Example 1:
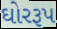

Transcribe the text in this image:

ઘોરરૂપ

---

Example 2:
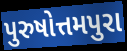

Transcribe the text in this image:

પુરુષોત્તમપુરા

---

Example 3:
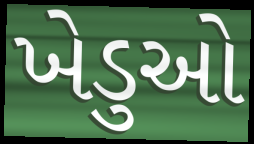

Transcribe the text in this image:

ખેડુઓ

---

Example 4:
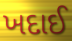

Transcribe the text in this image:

ખદાઈ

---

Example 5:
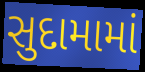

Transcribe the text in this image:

સુદામામાં